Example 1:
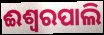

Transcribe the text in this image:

ଈଶ୍ୱରପାଲି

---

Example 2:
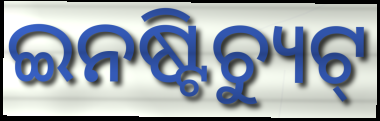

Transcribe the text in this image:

ଇନଷ୍ଟିଚ୍ୟୁଟ୍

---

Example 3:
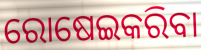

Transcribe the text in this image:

ରୋଷେଇକରିବା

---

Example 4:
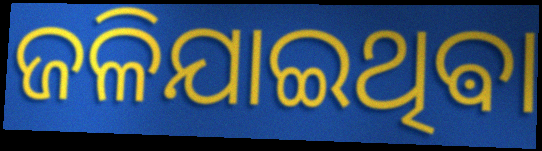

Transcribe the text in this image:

ଜଳିଯାଇଥିଵା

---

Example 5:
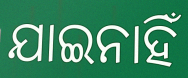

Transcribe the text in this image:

ଯାଇନାହିଁ